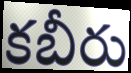
కబీరు